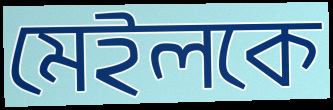
মেইলকে